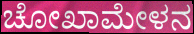
ಚೋಖಾಮೇಳನ